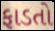
ફાડતો